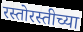
रस्तोरस्तीच्या